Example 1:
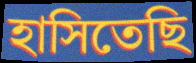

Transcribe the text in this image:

হাসিতেছি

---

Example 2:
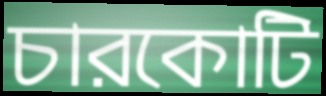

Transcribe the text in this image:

চারকোটি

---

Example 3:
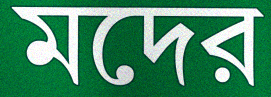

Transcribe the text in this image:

মদের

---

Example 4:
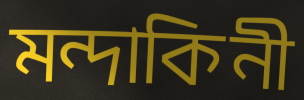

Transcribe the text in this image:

মন্দাকিনী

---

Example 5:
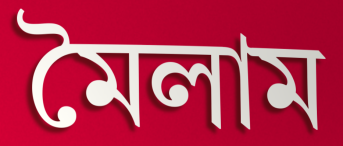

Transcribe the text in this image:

মৈলাম